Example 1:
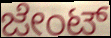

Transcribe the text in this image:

ಜೇಂಟ್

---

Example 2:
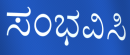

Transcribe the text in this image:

ಸಂಭವಿಸಿ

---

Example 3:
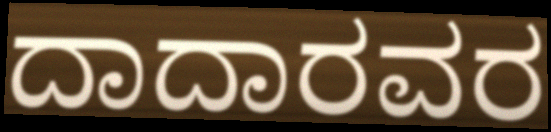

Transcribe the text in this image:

ದಾದಾರವರ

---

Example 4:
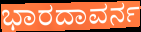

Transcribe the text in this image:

ಭಾರದಾವರ್ನ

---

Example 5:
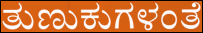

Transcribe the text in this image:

ತುಣುಕುಗಳಂತೆ